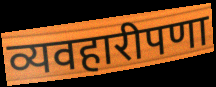
व्यवहारीपणा